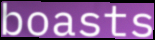
boasts